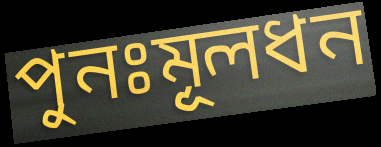
পুনঃমূলধন